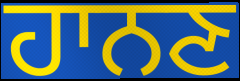
ਹਾਨਣ